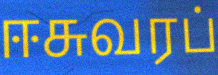
ஈசுவரப்